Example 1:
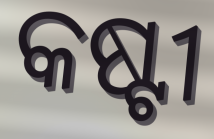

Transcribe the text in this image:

କଷ୍ଟୀ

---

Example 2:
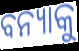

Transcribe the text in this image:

ବନ୍ୟାକୁ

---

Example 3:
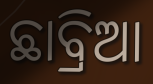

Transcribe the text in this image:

ଛାବ୍ରିଆ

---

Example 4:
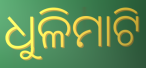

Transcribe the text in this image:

ଧୁଳିମାଟି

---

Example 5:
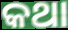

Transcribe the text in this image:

କଥା